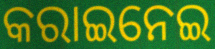
କରାଇନେଇ